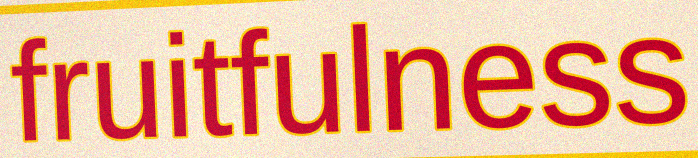
fruitfulness